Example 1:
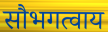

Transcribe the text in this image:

सौभगत्वाय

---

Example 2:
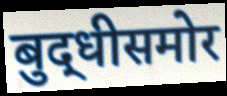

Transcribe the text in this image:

बुद्धीसमोर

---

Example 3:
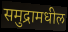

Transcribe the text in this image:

समुद्रामधील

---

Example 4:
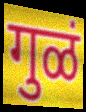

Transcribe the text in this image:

गुळं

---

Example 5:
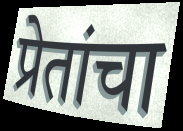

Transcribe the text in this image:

प्रेतांचा